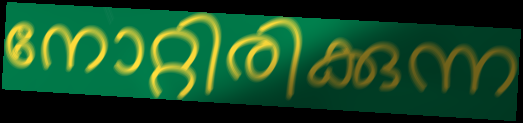
നോറ്റിരിക്കുന്ന